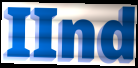
IInd